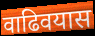
वाढिवयास